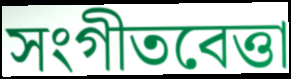
সংগীতবেত্তা